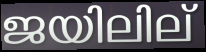
ജയിലില്